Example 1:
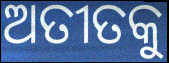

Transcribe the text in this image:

ଅତୀତକୁ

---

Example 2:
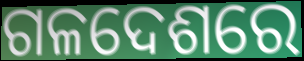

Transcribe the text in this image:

ଗଳଦେଶରେ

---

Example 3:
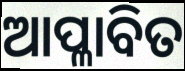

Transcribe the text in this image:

ଆପ୍ଳାବିତ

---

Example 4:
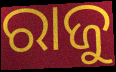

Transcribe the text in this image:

ରାଜୁ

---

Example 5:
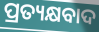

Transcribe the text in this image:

ପ୍ରତ୍ୟକ୍ଷବାଦ